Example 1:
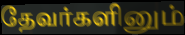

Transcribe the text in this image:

தேவர்களினும்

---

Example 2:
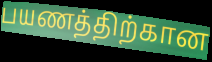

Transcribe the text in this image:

பயணத்திற்கான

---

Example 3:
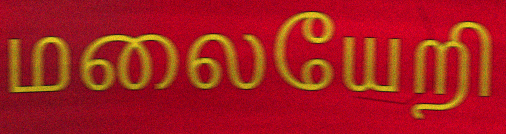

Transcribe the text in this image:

மலையேறி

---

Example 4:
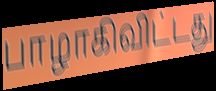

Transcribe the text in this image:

பாழாகிவிட்டது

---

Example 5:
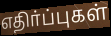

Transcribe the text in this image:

எதிர்ப்புகள்